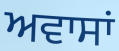
ਅਵਾਸਾਂ